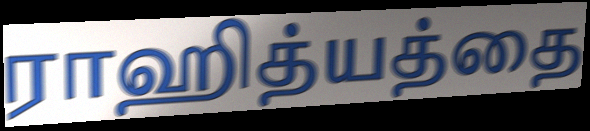
ராஹித்யத்தை